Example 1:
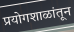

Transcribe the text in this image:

प्रयोगशाळांतून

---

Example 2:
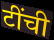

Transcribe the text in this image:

टींची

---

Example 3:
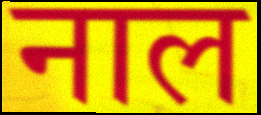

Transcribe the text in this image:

नाल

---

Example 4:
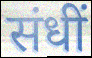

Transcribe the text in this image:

संधीं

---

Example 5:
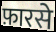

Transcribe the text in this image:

फ़ारसे